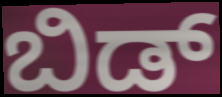
ಬಿಡ್